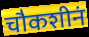
चौकशीनं